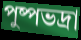
পুষ্পভদ্রা